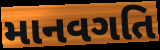
માનવગતિ